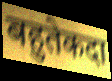
बहुतेकदा